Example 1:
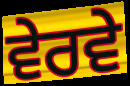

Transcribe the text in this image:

ਵੇਰਵੇ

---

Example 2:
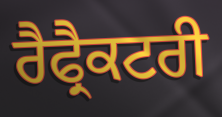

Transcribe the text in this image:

ਰੈਫ੍ਰੈਕਟਰੀ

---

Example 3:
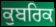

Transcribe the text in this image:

ਕੁਬਰਿਕ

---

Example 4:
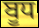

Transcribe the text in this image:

ਬੂਧ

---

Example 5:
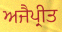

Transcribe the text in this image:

ਅਜੈਪ੍ਰੀਤ